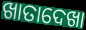
ଖାତାଦେଖା